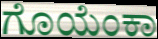
ಗೊಯೆಂಕಾ